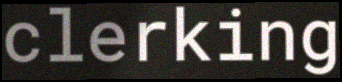
clerking